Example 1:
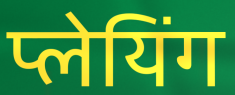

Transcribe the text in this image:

प्लेयिंग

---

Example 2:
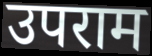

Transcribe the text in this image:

उपराम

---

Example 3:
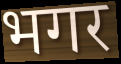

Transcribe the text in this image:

भगर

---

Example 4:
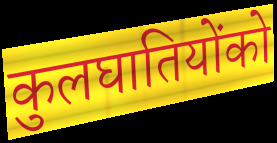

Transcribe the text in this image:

कुलघातियोंको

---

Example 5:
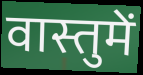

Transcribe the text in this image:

वास्तुमें